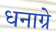
धनाग्रे